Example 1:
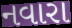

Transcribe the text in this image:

નવારા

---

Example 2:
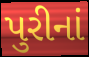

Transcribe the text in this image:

પુરીનાં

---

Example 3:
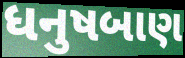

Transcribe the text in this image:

ધનુષબાણ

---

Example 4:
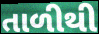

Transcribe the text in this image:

તાળીથી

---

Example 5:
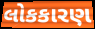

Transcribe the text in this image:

લોકકારણ